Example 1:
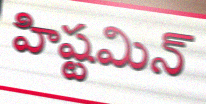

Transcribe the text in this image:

హిష్టమిన్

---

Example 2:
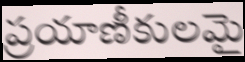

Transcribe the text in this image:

ప్రయాణీకులమై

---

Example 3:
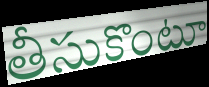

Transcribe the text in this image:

తీసుకొంటూ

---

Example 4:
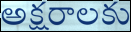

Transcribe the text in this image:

అక్షరాలకు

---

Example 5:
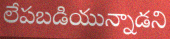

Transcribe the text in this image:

లేపబడియున్నాడని